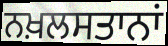
ਨਖ਼ਲਸਤਾਨਾਂ